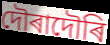
দৌৰাদৌৰি